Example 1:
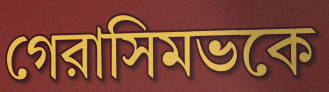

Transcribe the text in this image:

গেরাসিমভকে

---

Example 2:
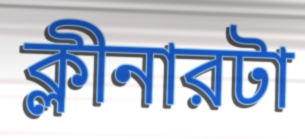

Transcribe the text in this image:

ক্লীনারটা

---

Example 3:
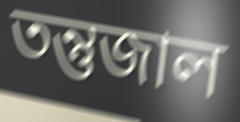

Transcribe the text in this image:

তন্তুজাল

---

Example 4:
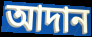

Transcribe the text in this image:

আদান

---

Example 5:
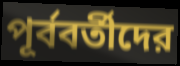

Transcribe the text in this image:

পূর্ববর্তীদের